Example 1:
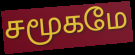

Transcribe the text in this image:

சமூகமே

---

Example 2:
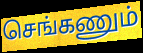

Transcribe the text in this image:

செங்கணும்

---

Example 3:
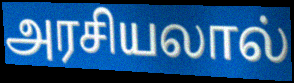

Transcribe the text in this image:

அரசியலால்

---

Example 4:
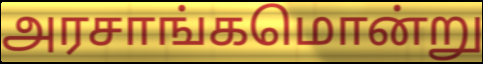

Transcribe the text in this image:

அரசாங்கமொன்று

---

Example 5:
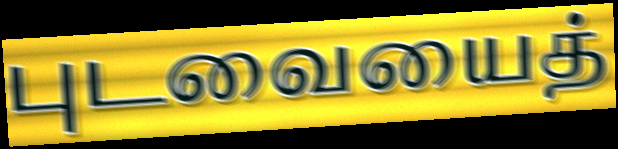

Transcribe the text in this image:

புடவையைத்